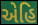
એહિ